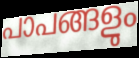
പാപങ്ങളും